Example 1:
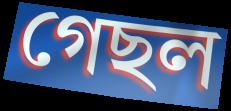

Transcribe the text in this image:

গেছল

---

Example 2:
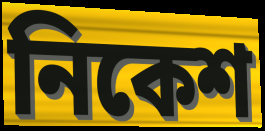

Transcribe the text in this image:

নিকেশ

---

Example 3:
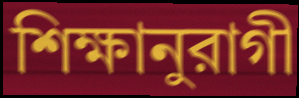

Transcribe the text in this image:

শিক্ষানুরাগী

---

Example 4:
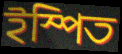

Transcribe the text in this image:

ইস্পিত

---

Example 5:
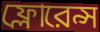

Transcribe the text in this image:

ফ্লোরেন্স